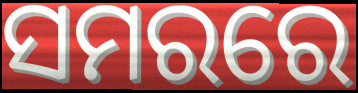
ସମରରେ